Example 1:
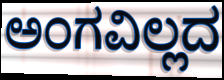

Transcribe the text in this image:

ಅಂಗವಿಲ್ಲದ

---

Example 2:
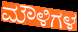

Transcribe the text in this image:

ಮೌಳಿಗಳ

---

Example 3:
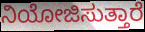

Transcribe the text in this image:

ನಿಯೋಜಿಸುತ್ತಾರೆ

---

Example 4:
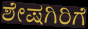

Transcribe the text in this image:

ಶೇಷಗಿರಿಗೆ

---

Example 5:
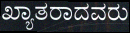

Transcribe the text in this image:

ಖ್ಯಾತರಾದವರು